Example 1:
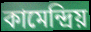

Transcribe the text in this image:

কামেন্দ্রিয়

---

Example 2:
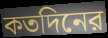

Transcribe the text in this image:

কতদিনের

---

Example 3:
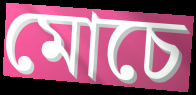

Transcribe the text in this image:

মোচে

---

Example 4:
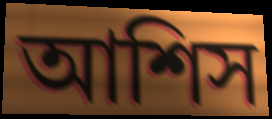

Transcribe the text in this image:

আশিস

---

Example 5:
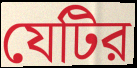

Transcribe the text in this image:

যেটির